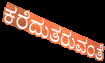
ಕರೆದುತರುವಂತೆ